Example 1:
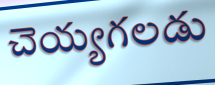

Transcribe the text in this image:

చెయ్యగలడు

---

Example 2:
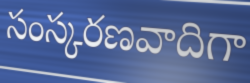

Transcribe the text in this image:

సంస్కరణవాదిగా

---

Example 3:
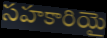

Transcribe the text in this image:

సహకారియై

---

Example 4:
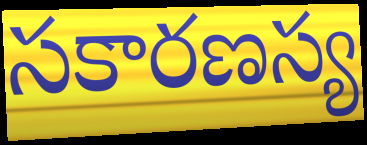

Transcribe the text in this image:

సకారణస్య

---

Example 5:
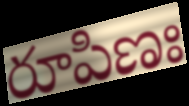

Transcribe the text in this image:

రూపిణః